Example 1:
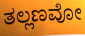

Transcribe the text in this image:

ತಲ್ಲಣವೋ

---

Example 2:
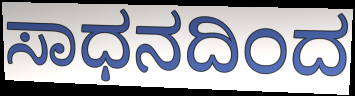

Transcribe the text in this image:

ಸಾಧನದಿಂದ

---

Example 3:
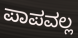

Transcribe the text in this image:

ಪಾಪವಲ್ಲ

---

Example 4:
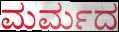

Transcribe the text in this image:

ಮರ್ಮದ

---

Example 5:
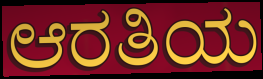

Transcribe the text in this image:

ಆರತಿಯ